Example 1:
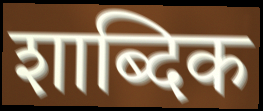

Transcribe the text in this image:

शाब्दिक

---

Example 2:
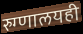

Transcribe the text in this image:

रुग्णालयही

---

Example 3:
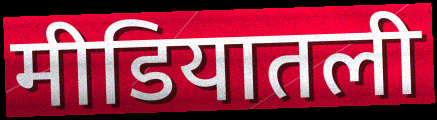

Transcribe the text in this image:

मीडियातली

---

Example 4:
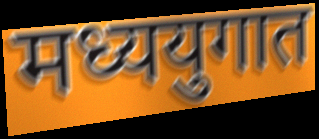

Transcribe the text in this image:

मध्ययुगात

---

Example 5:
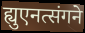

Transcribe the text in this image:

ह्युएनत्संगने